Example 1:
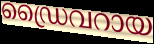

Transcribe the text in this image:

ഡ്രൈവറായ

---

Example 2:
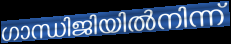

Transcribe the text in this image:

ഗാന്ധിജിയിൽനിന്ന്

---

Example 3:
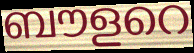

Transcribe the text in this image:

ബൗളറെ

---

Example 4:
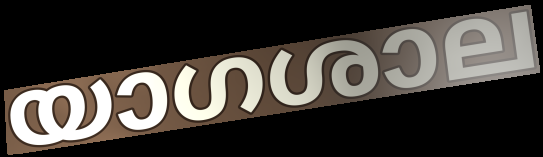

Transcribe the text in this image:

യാഗശാല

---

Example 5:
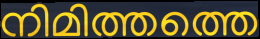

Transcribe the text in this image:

നിമിത്തത്തെ